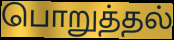
பொறுத்தல்